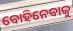
ବୋହିନେବାକୁ